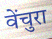
वेंचुरा